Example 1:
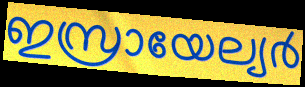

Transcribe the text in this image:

ഇസ്രായേല്യർ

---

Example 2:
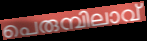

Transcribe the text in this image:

പെരുമ്പിലാവ്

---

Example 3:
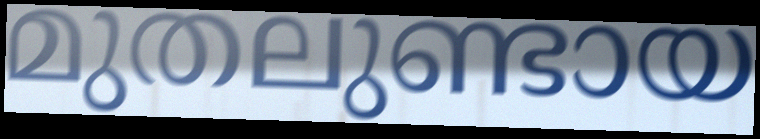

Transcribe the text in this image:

മുതലുണ്ടായ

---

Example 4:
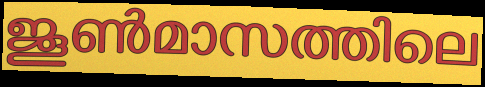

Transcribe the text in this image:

ജൂൺമാസത്തിലെ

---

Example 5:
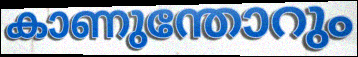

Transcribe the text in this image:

കാണുന്തോറും